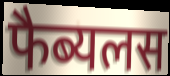
फैब्यलस